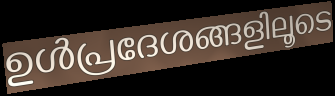
ഉൾപ്രദേശങ്ങളിലൂടെ